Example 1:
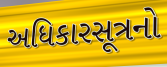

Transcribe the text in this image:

અધિકારસૂત્રનો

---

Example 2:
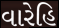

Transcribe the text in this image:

વારેહિ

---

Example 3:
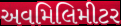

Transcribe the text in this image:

અવમિલિમીટર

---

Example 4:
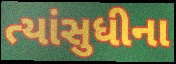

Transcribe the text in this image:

ત્યાંસુધીના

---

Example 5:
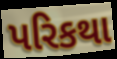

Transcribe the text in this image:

પરિકથા